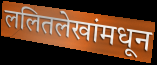
ललितलेखांमधून